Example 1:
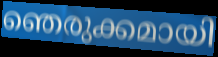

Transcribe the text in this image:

ഞെരുക്കമായി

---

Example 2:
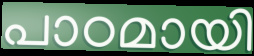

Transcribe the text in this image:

പാഠമായി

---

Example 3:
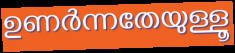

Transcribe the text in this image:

ഉണർന്നതേയുള്ളൂ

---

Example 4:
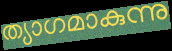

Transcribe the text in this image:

ത്യാഗമാകുന്നു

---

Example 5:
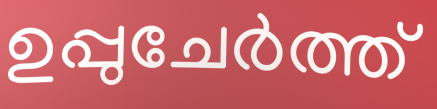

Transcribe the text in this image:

ഉപ്പുചേർത്ത്